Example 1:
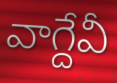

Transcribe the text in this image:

వాగ్దేవీ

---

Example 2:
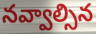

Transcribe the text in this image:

నవ్వాల్సిన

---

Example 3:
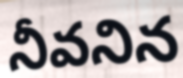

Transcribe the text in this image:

నీవనిన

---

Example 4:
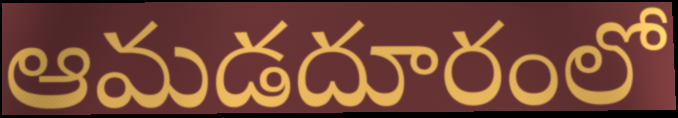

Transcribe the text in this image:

ఆమడదూరంలో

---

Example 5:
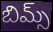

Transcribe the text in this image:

బిమ్స్